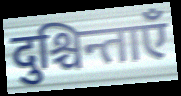
दुश्चिन्ताएँ